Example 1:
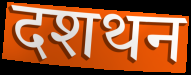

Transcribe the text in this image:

दशथन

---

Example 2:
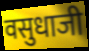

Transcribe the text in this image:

वसुधाजी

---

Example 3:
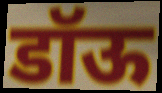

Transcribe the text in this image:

डॉऊ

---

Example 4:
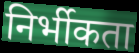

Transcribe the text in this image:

निर्भीकता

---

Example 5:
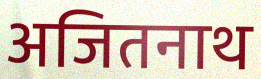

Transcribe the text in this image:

अजितनाथ